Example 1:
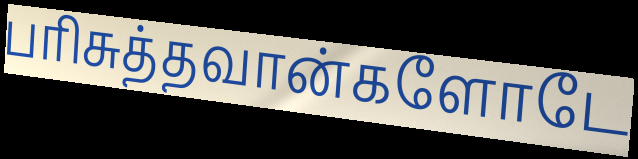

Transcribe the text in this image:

பரிசுத்தவான்களோடே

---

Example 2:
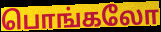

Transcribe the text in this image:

பொங்கலோ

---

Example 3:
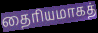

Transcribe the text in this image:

தைரியமாகத்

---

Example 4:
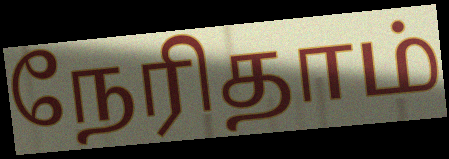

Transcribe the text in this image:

நேரிதாம்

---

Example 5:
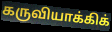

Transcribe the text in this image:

கருவியாக்கிக்